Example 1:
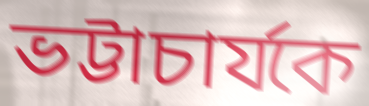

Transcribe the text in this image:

ভট্টাচার্যকে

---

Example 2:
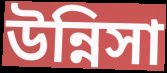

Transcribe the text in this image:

উন্নিসা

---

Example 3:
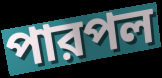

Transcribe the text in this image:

পারপল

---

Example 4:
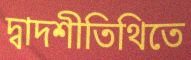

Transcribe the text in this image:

দ্বাদশীতিথিতে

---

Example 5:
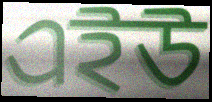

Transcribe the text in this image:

এইউ